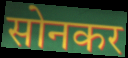
सोनकर